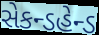
સેકન્ડહેન્ડ